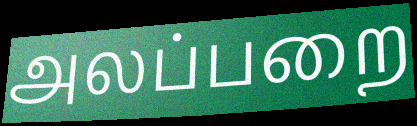
அலப்பறை